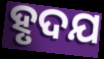
ହୃଦଯ